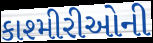
કાશ્મીરીઓની